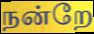
நன்றே